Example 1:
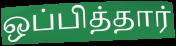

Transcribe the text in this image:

ஒப்பித்தார்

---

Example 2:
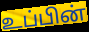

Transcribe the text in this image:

உப்பின்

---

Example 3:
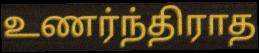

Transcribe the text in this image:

உணர்ந்திராத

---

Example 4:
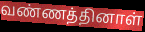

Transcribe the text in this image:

வண்ணத்தினாள்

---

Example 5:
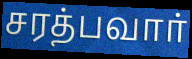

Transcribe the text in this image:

சரத்பவார்